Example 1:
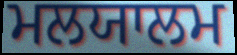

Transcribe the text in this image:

ਮਲਯਾਲਮ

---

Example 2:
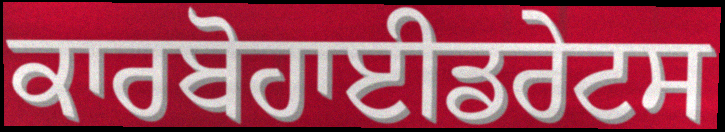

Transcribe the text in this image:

ਕਾਰਬੋਹਾਈਡਰੇਟਸ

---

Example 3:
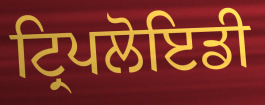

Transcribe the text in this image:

ਟ੍ਰਿਪਲੋਇਡੀ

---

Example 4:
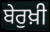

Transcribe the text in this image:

ਬੇਰੁਖ਼ੀ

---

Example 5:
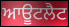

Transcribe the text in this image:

ਆਊਟਲੈਟ